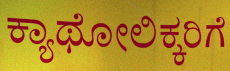
ಕ್ಯಾಥೋಲಿಕ್ಕರಿಗೆ